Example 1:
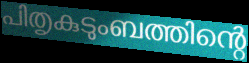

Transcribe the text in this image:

പിതൃകുടുംബത്തിന്റെ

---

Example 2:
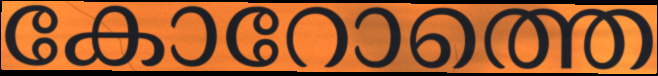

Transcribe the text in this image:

കോറോത്തെ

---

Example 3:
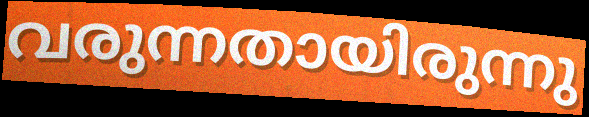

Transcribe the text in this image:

വരുന്നതായിരുന്നു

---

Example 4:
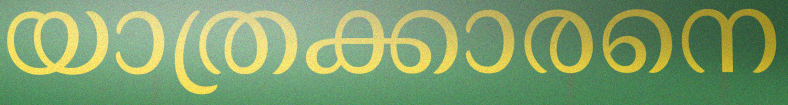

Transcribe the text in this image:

യാത്രക്കാരനെ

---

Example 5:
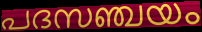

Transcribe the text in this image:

പദസഞ്ചയം